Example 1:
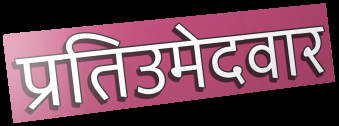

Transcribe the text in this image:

प्रतिउमेदवार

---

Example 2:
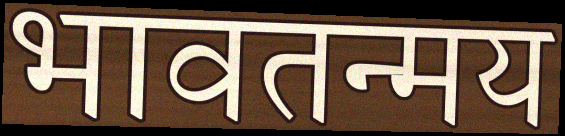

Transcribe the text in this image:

भावतन्मय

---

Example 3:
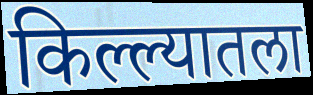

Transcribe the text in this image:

किल्ल्यातला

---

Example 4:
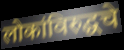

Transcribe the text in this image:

लोकांविरुद्धचे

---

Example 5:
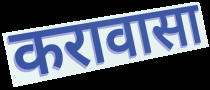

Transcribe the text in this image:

करावासा